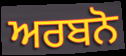
ਅਰਬਨੋ